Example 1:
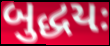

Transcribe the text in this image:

બુદ્ધયઃ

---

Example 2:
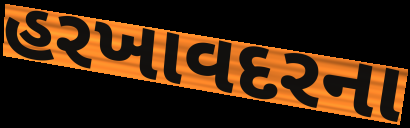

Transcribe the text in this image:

હરખાવદરના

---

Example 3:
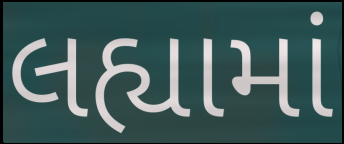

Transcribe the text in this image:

લહ્યામાં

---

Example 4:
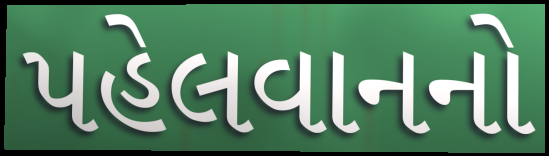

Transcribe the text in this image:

પહેલવાનનો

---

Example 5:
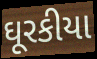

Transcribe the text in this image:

ઘૂરકીયા